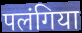
पलंगिया